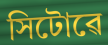
সিটোৱে